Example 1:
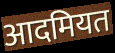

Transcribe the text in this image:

आदमियत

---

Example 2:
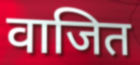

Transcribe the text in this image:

वाजित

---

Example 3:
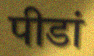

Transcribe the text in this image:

पीडां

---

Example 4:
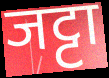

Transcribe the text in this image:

जट्टा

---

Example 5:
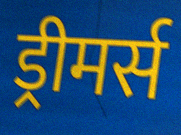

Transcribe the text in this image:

ड्रीमर्स